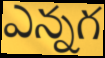
ఎన్నగ